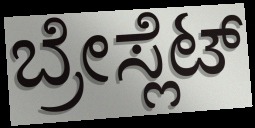
ಬ್ರೇಸ್ಲೆಟ್